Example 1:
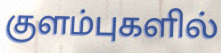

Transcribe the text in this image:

குளம்புகளில்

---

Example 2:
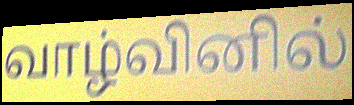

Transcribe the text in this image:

வாழ்வினில்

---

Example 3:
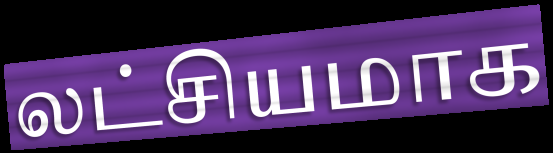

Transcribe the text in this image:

லட்சியமாக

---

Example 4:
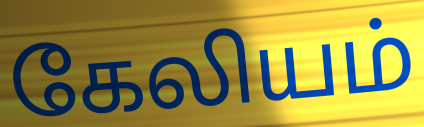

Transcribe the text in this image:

கேலியம்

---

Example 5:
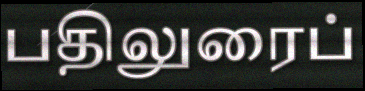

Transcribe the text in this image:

பதிலுரைப்